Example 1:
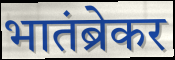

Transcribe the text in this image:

भातंब्रेकर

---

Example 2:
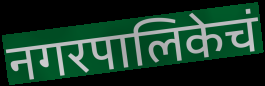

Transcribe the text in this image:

नगरपालिकेचं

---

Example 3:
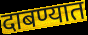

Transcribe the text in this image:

दाबण्यात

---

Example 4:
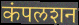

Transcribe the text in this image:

कंपलशन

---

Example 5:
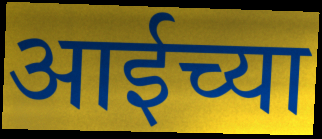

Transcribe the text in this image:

आईच्या